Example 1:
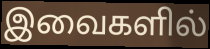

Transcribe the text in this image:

இவைகளில்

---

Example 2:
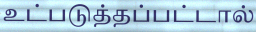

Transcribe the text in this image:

உட்படுத்தப்பட்டால்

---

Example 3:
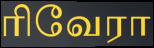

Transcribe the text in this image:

ரிவேரா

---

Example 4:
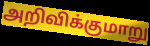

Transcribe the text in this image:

அறிவிக்குமாறு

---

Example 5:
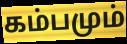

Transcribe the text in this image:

கம்பமும்